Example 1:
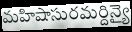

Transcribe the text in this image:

మహిషాసురమర్దిన్యై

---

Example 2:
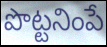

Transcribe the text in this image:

పొట్టనింపే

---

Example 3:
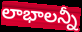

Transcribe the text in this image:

లాభాలన్నీ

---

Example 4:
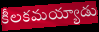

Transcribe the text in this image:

కీలకమయ్యాడు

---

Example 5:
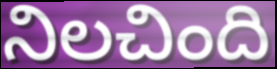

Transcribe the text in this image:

నిలచింది